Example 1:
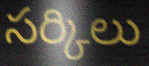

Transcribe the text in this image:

సర్కిలు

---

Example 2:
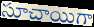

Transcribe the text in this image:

సూచాయిగా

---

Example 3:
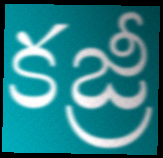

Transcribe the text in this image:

కజ్రీ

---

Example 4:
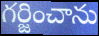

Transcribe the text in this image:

గర్జించాను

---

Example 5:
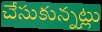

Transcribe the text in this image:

చేసుకున్నట్లు